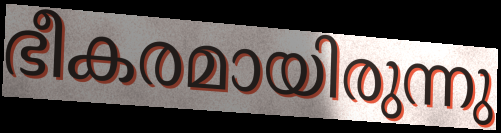
ഭീകരമായിരുന്നു